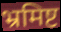
भ्रमिष्ट